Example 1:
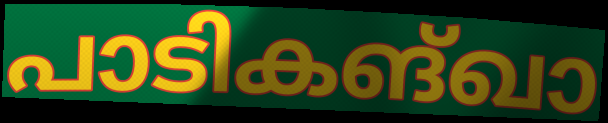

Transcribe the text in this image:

പാടികങ്ഖാ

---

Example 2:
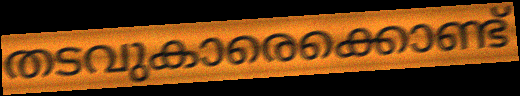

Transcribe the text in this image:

തടവുകാരെക്കൊണ്ട്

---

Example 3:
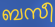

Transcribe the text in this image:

ബസീ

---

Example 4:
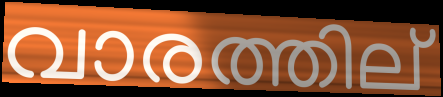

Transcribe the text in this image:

വാരത്തില്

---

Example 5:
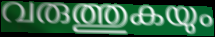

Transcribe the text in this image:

വരുത്തുകയും